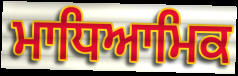
ਮਾਧਿਆਮਿਕ